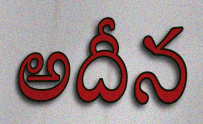
అదీన